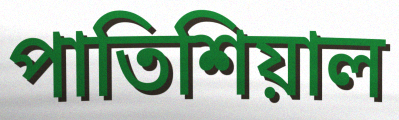
পাতিশিয়াল